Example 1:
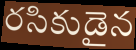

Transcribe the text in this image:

రసికుడైన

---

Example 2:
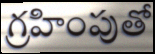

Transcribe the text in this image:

గ్రహింపుతో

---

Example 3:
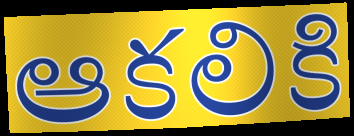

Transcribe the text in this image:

ఆకలికి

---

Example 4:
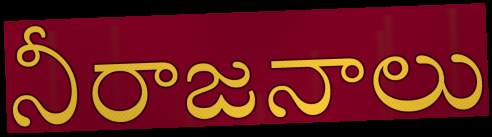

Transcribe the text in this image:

నీరాజనాలు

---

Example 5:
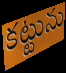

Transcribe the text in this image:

కట్టును